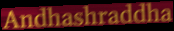
Andhashraddha